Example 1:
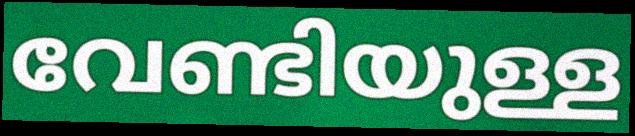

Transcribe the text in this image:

വേണ്ടിയുള്ള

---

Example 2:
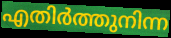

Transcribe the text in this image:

എതിർത്തുനിന്ന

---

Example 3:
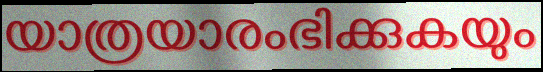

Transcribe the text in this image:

യാത്രയാരംഭിക്കുകയും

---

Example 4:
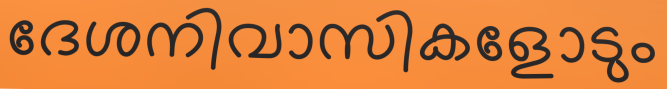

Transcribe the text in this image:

ദേശനിവാസികളോടും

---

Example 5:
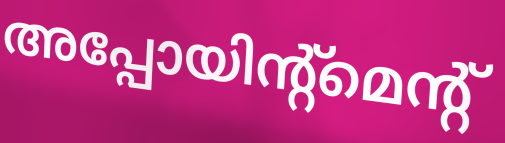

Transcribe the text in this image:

അപ്പോയിന്റ്മെന്റ്